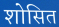
शोसित